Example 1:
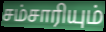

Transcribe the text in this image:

சம்சாரியும்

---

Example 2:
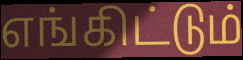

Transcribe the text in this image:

எங்கிட்டும்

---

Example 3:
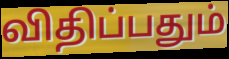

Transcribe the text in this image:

விதிப்பதும்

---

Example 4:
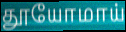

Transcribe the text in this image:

தூயோமாய்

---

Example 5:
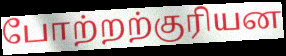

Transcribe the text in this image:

போற்றற்குரியன